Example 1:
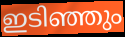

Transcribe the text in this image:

ഇടിഞ്ഞും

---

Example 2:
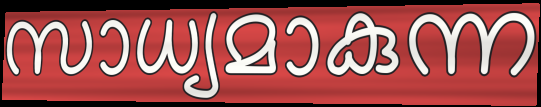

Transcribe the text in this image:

സാധ്യമാകുന്ന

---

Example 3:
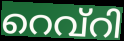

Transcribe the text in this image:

റെവ്റി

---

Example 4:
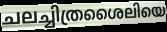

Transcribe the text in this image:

ചലച്ചിത്രശൈലിയെ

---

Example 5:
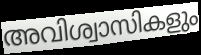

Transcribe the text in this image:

അവിശ്വാസികളും